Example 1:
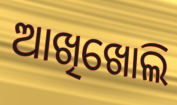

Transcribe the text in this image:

ଆଖିଖୋଲି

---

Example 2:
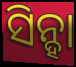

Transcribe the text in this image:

ସିନ୍ହା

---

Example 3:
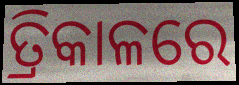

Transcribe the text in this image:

ତ୍ରିକାଳରେ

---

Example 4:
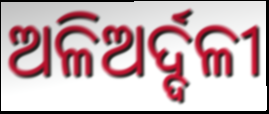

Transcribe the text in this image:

ଅଳିଅର୍ଦ୍ଦଳୀ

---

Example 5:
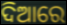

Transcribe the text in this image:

ଦିଆରେ